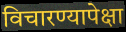
विचारण्यापेक्षा